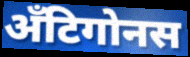
अँटिगोनस